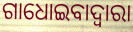
ଗାଧୋଇବାଦ୍ଵାରା